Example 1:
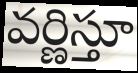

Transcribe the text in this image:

వర్ణిస్తూ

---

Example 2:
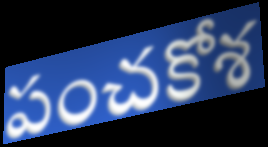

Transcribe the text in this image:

పంచకోశ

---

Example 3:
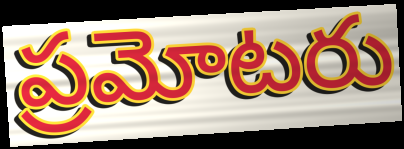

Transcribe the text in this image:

ప్రమోటరు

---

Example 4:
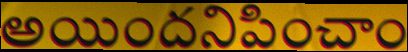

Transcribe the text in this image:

అయిందనిపించాం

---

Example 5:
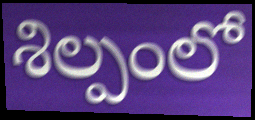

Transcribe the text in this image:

శిల్పంలో